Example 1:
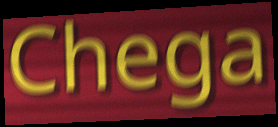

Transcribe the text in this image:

Chega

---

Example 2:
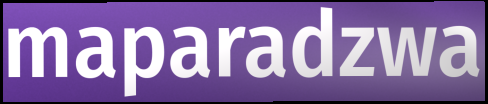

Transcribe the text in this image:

maparadzwa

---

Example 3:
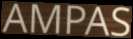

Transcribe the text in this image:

AMPAS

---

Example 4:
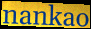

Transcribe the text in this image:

nankao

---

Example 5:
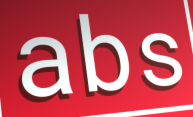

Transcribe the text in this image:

abs